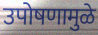
उपोषणामुळे